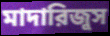
মাদারিজুস